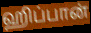
ஹிப்பான்